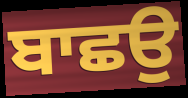
ਬਾਛਉ